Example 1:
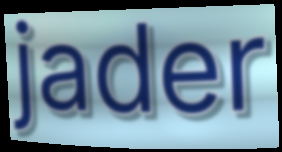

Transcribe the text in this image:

jader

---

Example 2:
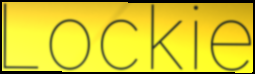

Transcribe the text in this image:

Lockie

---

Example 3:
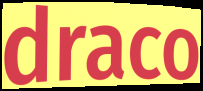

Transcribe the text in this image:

draco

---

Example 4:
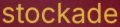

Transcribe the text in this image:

stockade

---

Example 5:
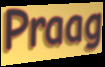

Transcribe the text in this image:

Praag